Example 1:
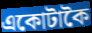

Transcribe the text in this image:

একোটাকৈ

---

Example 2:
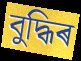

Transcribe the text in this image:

বুদ্ধিৰ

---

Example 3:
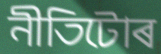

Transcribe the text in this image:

নীতিটোৰ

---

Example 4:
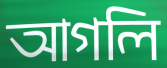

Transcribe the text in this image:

আগলি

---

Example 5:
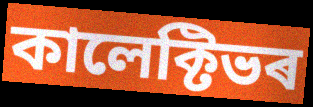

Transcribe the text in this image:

কালেক্টিভৰ